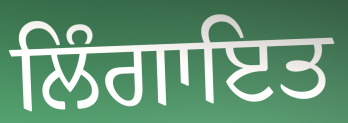
ਲਿੰਗਾਇਤ